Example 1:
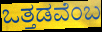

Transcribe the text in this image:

ಒತ್ತಡವೆಂಬ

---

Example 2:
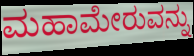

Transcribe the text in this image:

ಮಹಾಮೇರುವನ್ನು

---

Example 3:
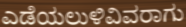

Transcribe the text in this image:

ಎಡೆಯಲುಳಿವಿವರಾಗು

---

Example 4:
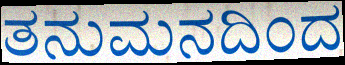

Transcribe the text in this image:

ತನುಮನದಿಂದ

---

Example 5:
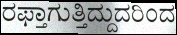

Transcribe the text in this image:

ರಫ್ತಾಗುತ್ತಿದ್ದುದರಿಂದ